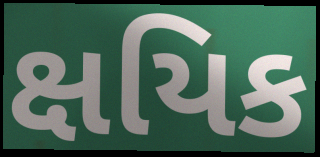
ક્ષયિક